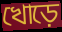
খোড়ে